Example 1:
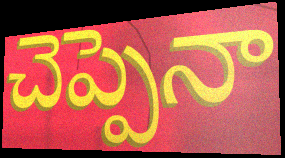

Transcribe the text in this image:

చెప్పెనా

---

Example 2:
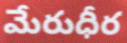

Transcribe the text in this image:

మేరుధీర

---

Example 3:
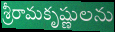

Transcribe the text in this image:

శ్రీరామకృష్ణులను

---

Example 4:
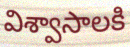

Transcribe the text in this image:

విశ్వాసాలకి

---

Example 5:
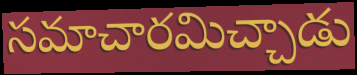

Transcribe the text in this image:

సమాచారమిచ్చాడు